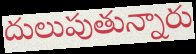
దులుపుతున్నారు